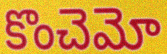
కొంచెమో